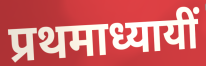
प्रथमाध्यायीं